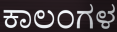
ಕಾಲಂಗಳ